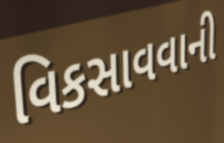
વિકસાવવાની